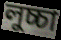
লুচ্চা